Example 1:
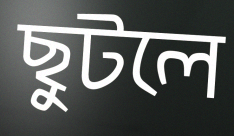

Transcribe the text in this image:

ছুটলে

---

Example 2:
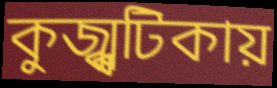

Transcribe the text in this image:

কুজ্ঝ্বটিকায়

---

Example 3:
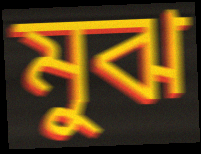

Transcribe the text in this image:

মুঝ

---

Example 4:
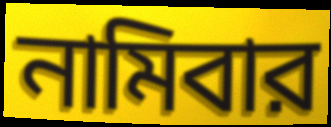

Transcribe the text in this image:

নামিবার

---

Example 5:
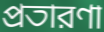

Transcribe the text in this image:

প্রতারণা